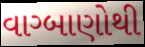
વાગ્બાણોથી